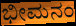
ಭೀಮನಂ